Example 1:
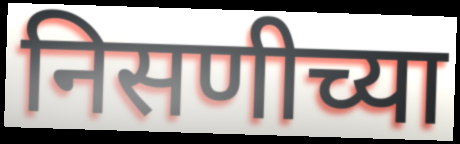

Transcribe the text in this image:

निसणीच्या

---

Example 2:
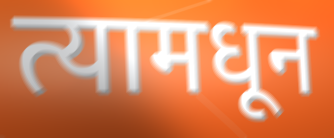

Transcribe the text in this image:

त्यामधून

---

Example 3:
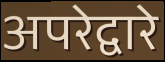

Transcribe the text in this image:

अपरेद्वारे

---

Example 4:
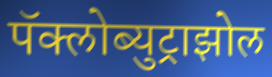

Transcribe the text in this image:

पॅक्लोब्युट्राझोल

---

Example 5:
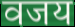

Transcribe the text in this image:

वजय